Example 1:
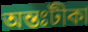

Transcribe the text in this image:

অন্তঃটীকা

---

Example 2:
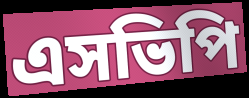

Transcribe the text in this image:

এসভিপি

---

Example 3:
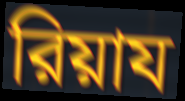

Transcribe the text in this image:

রিয়ায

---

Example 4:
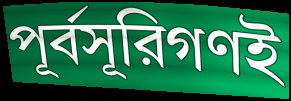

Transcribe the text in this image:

পূর্বসূরিগণই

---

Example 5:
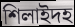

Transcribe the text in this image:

শিলাইদহ